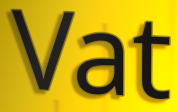
Vat